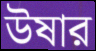
উষার